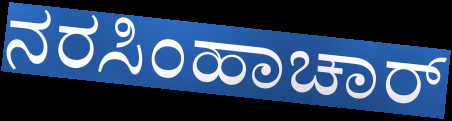
ನರಸಿಂಹಾಚಾರ್